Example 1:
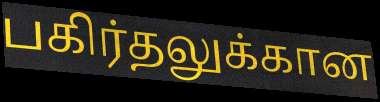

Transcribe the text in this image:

பகிர்தலுக்கான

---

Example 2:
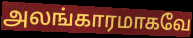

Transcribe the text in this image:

அலங்காரமாகவே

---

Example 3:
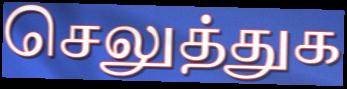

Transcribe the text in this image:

செலுத்துக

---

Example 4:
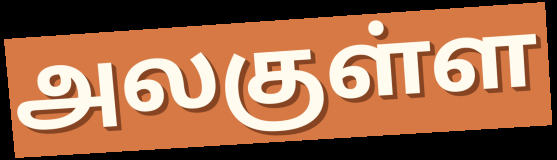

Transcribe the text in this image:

அலகுள்ள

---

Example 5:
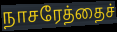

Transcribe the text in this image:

நாசரேத்தைச்